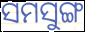
ସମସୁଙ୍ଗ